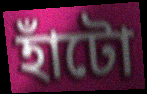
হাঁটো